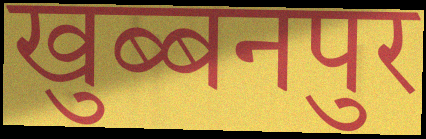
खुब्बनपुर